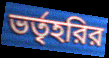
ভর্তৃহরির